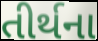
તીર્થના